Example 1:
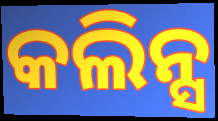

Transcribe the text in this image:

କଲିନ୍ସ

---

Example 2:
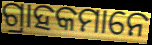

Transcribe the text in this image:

ଗ୍ରାହକମାନେ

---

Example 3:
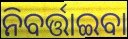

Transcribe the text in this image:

ନିବର୍ତ୍ତାଇବା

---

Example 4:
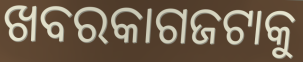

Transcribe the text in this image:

ଖବରକାଗଜଟାକୁ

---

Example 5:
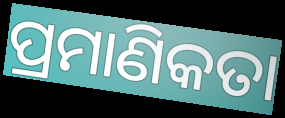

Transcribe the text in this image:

ପ୍ରମାଣିକତା